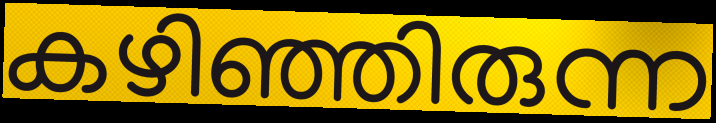
കഴിഞ്ഞിരുന്ന